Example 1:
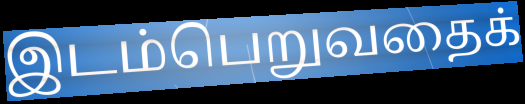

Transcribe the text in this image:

இடம்பெறுவதைக்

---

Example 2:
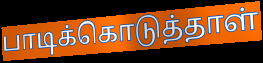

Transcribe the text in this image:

பாடிக்கொடுத்தாள்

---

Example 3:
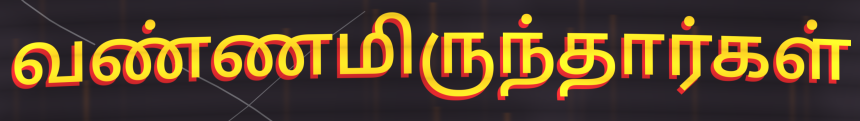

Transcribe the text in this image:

வண்ணமிருந்தார்கள்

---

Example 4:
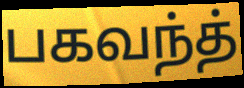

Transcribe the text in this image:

பகவந்த்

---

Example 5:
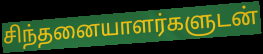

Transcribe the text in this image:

சிந்தனையாளர்களுடன்